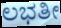
ಲಭತೀ